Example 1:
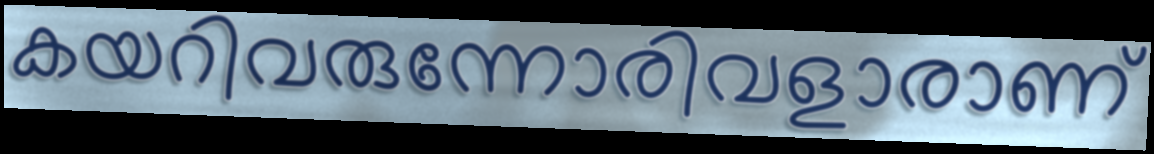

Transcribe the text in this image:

കയറിവരുന്നോരിവളാരാണ്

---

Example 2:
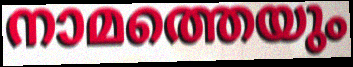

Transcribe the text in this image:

നാമത്തെയും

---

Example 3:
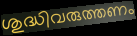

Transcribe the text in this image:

ശുദ്ധിവരുത്തണം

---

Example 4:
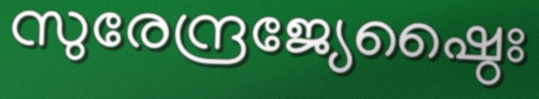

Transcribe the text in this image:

സുരേന്ദ്രജ്യേഷ്ഠൈഃ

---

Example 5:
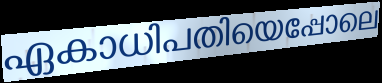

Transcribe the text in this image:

ഏകാധിപതിയെപ്പോലെ